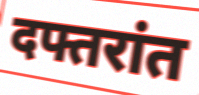
दफ्तरांत